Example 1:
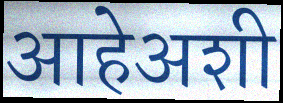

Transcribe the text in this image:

आहेअशी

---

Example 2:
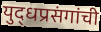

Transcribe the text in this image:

युद्धप्रसंगांची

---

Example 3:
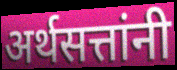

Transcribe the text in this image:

अर्थसत्तांनी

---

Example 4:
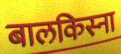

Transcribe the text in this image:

बालकिस्ना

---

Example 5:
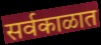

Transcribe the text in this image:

सर्वकाळात